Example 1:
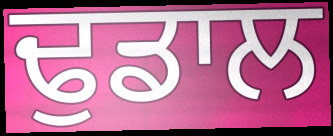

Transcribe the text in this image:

ਢੁਡਾਲ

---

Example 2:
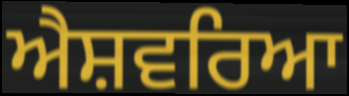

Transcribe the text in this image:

ਐਸ਼ਵਰਿਆ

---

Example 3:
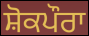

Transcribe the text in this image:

ਸ਼ੋਕਪੌਰਾ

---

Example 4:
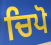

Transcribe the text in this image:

ਚਿਪੋ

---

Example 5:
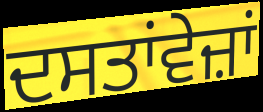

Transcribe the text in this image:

ਦਸਤਾਂਵੇਜ਼ਾਂ